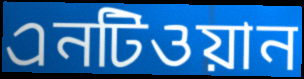
এনটিওয়ান